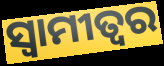
ସ୍ୱାମୀତ୍ୱର